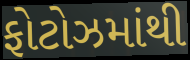
ફોટોઝમાંથી